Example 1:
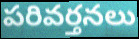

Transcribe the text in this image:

పరివర్తనలు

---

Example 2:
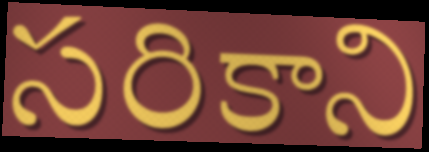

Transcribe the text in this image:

సరికాని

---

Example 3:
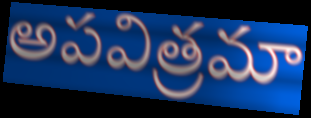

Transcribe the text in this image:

అపవిత్రమా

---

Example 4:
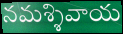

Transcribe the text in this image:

నమశ్శివాయ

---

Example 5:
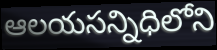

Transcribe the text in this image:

ఆలయసన్నిధిలోని